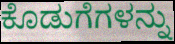
ಕೊಡುಗೆಗಳನ್ನು